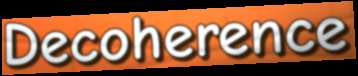
Decoherence